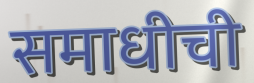
समाधीची